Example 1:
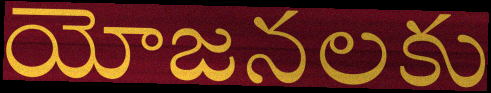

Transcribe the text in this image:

యోజనలకు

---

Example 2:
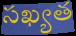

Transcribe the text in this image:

సఖ్యత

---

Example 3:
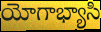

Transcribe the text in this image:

యోగాభ్యాసి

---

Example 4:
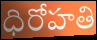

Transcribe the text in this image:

ధిరోహతి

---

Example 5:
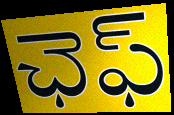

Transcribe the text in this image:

ఛెఫ్